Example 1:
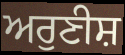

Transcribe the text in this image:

ਅਰੁਣੀਸ਼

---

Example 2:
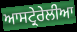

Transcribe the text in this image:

ਆਸਟ੍ਰੇਰੇਲੀਆ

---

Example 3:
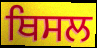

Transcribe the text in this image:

ਥਿਸਲ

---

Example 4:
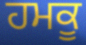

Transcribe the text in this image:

ਹਮਕੂ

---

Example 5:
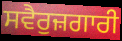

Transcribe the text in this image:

ਸਵੈਰੁਜ਼ਗਾਰੀ